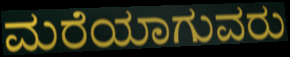
ಮರೆಯಾಗುವರು